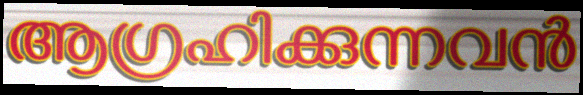
ആഗ്രഹിക്കുന്നവൻ